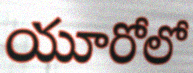
యూరోలో